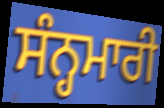
ਸੰਨ੍ਹਮਾਰੀ